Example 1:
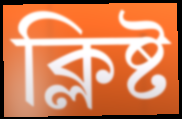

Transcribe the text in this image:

ক্লিষ্ট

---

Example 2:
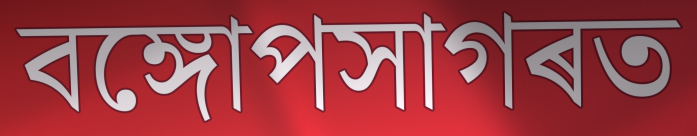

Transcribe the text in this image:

বঙ্গোপসাগৰত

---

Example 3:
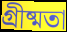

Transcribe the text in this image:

গ্ৰীষ্মতা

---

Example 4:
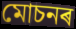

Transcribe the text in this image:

মোচনৰ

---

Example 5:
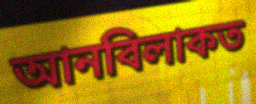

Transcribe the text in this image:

আনবিলাকত